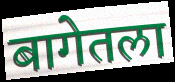
बागेतला